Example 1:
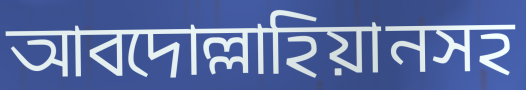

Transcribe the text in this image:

আবদোল্লাহিয়ানসহ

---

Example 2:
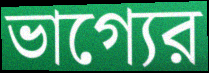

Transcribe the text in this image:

ভাগ্যের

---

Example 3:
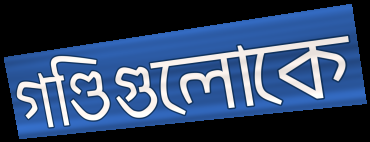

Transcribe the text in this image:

গণ্ডিগুলোকে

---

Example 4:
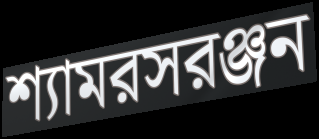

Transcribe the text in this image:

শ্যামরসরঞ্জন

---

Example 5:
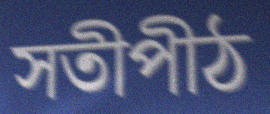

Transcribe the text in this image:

সতীপীঠ